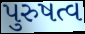
પુરુષત્વ